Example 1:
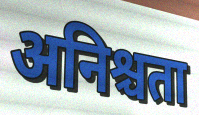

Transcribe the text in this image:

अनिश्चता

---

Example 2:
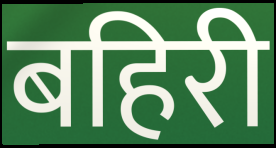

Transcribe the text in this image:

बहिरी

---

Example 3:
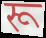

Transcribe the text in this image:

रू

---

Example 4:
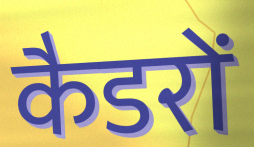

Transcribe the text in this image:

कैडरों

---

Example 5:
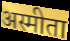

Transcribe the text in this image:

अस्मीता